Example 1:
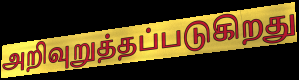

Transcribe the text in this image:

அறிவுறுத்தப்படுகிறது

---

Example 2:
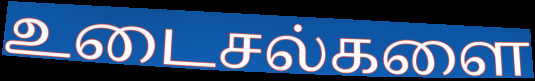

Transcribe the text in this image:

உடைசல்களை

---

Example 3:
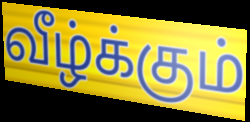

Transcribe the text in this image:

வீழ்க்கும்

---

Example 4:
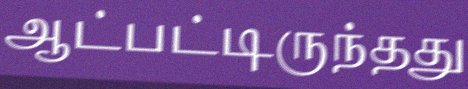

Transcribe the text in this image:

ஆட்பட்டிருந்தது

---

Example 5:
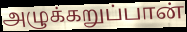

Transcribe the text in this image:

அழுக்கறுப்பான்